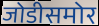
जोडीसमोर